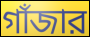
গাঁজার